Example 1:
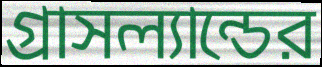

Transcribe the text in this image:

গ্রাসল্যান্ডের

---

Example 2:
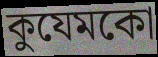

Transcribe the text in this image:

কুযেমকো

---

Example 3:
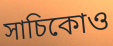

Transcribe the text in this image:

সাচিকোও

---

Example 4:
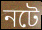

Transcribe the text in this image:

নটে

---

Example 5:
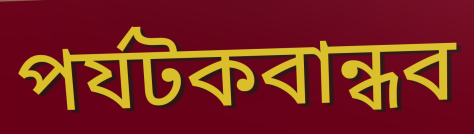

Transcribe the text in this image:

পর্যটকবান্ধব